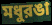
মধুরঙা